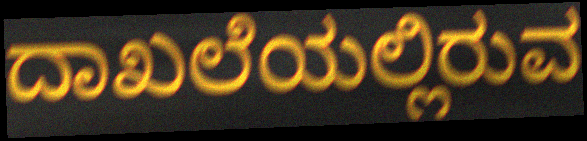
ದಾಖಲೆಯಲ್ಲಿರುವ